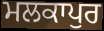
ਮਲਕਾਪੁਰ